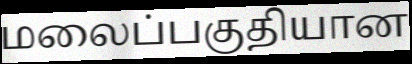
மலைப்பகுதியான